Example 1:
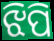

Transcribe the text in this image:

ଝିପି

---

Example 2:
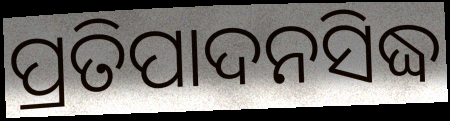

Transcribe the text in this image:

ପ୍ରତିପାଦନସିଦ୍ଧ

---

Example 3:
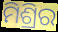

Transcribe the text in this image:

ମିଶ୍ରିର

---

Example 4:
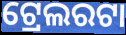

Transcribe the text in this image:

ଟ୍ରେଲରଟା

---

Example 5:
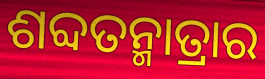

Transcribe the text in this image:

ଶବ୍ଦତନ୍ମାତ୍ରାର